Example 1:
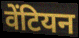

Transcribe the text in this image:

वेंटियन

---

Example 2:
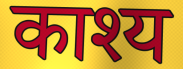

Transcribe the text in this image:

काश्य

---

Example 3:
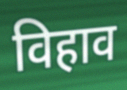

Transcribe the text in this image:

विहाव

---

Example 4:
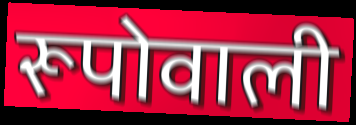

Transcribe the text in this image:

रूपोवाली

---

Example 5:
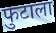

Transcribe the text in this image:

फुटाला